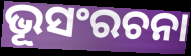
ଭୂସଂରଚନା